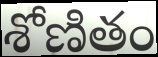
శోణితం